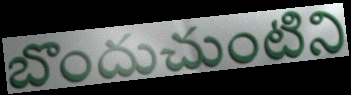
బొందుచుంటిని